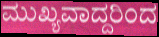
ಮುಖ್ಯವಾದ್ದರಿಂದ